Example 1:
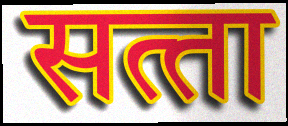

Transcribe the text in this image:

सत्‍ता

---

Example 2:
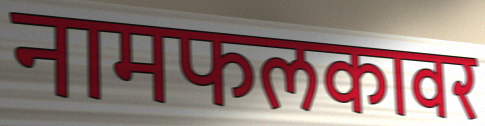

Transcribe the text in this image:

नामफलकावर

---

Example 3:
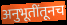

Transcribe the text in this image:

अनुभूतींतूनच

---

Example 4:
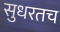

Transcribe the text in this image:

सुधरतच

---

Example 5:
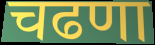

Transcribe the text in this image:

चढणा